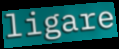
ligare